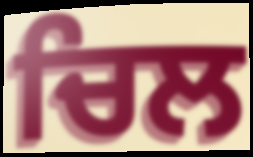
ਚਿਲ